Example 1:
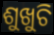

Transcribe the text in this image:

ଶୁଖୁଚି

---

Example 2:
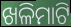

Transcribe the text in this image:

ଖଳିମାଟି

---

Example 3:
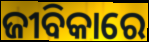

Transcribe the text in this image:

ଜୀବିକାରେ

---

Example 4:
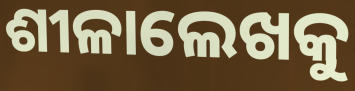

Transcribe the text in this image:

ଶୀଳାଲେଖକୁ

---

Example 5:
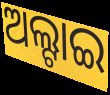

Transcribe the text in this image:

ଅଲ୍ଟାଇ